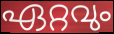
ഏറ്റവും